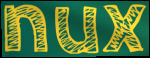
nux